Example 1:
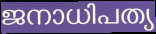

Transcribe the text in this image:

ജനാധിപത്യ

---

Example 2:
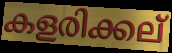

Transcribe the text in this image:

കളരിക്കല്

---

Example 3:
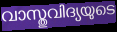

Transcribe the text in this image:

വാസ്തുവിദ്യയുടെ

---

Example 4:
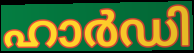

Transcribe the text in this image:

ഹാർഡി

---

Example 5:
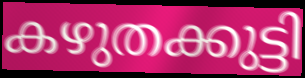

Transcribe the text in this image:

കഴുതക്കുട്ടി